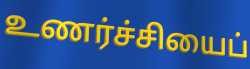
உணர்ச்சியைப்